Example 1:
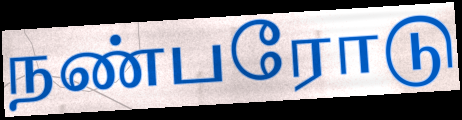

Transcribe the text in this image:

நண்பரோடு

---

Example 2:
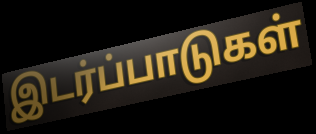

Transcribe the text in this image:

இடர்ப்பாடுகள்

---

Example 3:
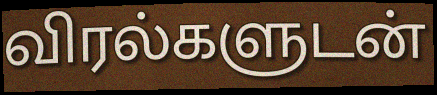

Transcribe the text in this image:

விரல்களுடன்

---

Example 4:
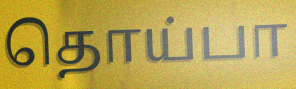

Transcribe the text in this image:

தொய்பா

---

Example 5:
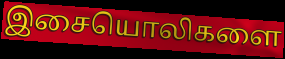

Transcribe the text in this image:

இசையொலிகளை